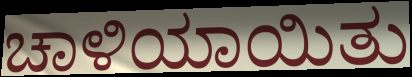
ಚಾಳಿಯಾಯಿತು